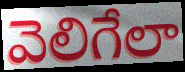
వెలిగేలా